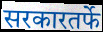
सरकारतर्फे